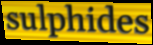
sulphides